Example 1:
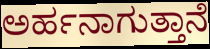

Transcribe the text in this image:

ಅರ್ಹನಾಗುತ್ತಾನೆ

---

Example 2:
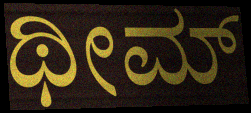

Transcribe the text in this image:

ಥೀಮ್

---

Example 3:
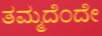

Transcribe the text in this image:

ತಮ್ಮದೆಂದೇ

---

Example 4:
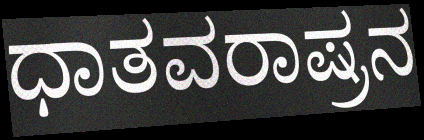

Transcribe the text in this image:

ಧಾತವರಾಷ್ರನ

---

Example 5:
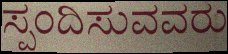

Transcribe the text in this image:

ಸ್ಪಂದಿಸುವವರು